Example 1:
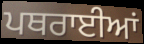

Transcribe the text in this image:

ਪਥਰਾਈਆਂ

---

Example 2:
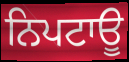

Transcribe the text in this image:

ਨਿਪਟਾਊ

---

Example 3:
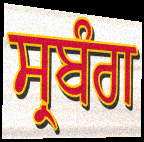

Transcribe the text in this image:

ਸ੍ਰਬੰਗ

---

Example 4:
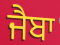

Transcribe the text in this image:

ਜੈਬਾ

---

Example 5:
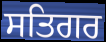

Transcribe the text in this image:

ਸਤਿਗਰ